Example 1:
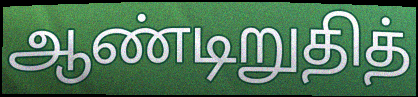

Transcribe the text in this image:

ஆண்டிறுதித்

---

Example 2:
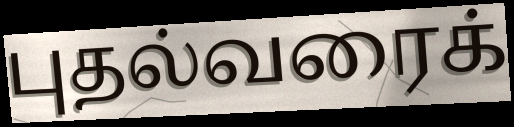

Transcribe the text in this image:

புதல்வரைக்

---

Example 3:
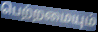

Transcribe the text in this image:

பெற்றமையும்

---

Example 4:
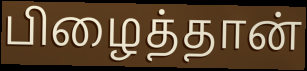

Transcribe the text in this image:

பிழைத்தான்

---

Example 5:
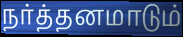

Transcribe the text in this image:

நர்த்தனமாடும்